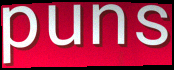
puns